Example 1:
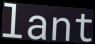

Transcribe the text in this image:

lant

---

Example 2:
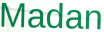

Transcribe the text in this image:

Madan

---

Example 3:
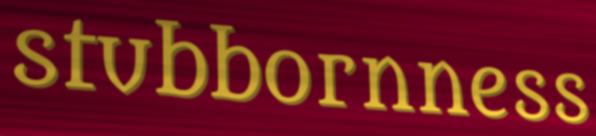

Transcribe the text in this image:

stubbornness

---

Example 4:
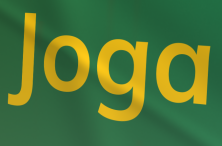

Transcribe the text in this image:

Joga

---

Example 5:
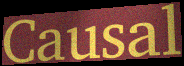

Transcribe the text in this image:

Causal